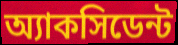
অ্যাকসিডেন্ট